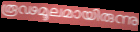
രൂഢമൂലമായിരുന്നു